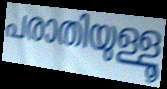
പരാതിയുള്ളൂ